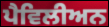
ਪੈਵਿਲੀਅਨ